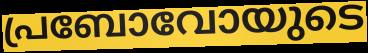
പ്രബോവോയുടെ